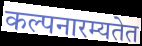
कल्पनारम्यतेत